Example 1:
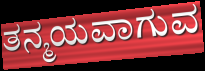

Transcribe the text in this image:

ತನ್ಮಯವಾಗುವ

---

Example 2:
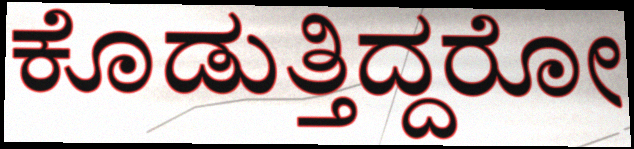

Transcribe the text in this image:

ಕೊಡುತ್ತಿದ್ದರೋ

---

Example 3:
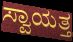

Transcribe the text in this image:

ಸ್ವಾಯತ್ತ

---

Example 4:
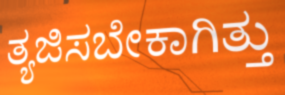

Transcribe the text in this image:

ತ್ಯಜಿಸಬೇಕಾಗಿತ್ತು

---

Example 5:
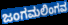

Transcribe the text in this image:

ಜಂಗಮಲಿಂಗವ